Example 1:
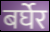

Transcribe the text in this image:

बर्घेर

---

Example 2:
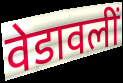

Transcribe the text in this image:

वेडावलीं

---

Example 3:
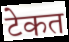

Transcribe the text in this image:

टेकत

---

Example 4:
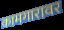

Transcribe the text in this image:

कामगारावर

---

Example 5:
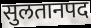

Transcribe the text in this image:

सुलतानपद